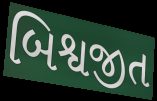
બિશ્વજીત